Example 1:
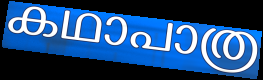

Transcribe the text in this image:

കഥാപാത്ര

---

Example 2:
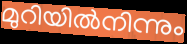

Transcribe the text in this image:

മുറിയിൽനിന്നും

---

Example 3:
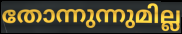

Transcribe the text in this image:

തോന്നുന്നുമില്ല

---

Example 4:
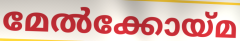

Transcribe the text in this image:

മേൽക്കോയ്മ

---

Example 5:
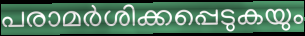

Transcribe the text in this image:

പരാമർശിക്കപ്പെടുകയും